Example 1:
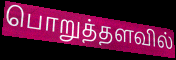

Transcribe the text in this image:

பொறுத்தளவில்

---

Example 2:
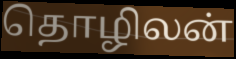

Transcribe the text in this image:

தொழிலன்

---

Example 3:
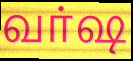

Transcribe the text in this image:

வர்ஷ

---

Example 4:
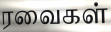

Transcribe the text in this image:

ரவைகள்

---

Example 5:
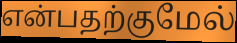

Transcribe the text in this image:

என்பதற்குமேல்